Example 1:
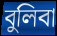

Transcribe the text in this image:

বুলিবা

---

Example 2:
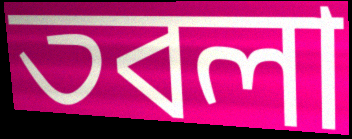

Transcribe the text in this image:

তবলা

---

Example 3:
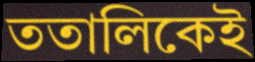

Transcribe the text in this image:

ততালিকেই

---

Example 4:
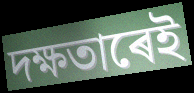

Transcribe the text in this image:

দক্ষতাৰেই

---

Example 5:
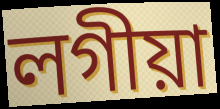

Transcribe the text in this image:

লগীয়া